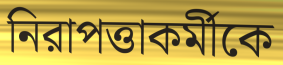
নিরাপত্তাকর্মীকে